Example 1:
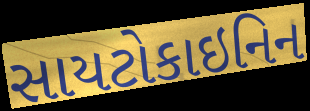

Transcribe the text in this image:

સાયટોકાઇનિન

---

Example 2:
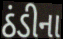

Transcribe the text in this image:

ઠંડીના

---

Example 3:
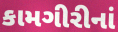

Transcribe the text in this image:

કામગીરીનાં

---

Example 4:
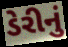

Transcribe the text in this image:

ડેરીનું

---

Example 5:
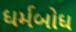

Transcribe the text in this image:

ધર્મબોધ